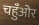
चहुँओर